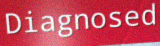
Diagnosed